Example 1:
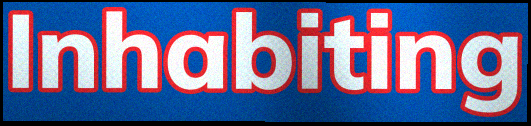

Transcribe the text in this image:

Inhabiting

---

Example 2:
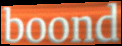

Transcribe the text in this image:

boond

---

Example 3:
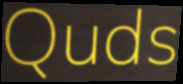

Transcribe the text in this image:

Quds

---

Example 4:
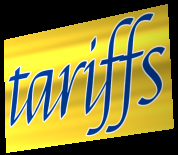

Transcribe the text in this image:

tariffs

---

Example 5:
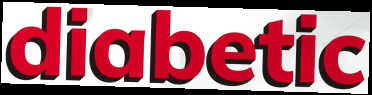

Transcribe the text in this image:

diabetic